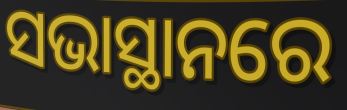
ସଭାସ୍ଥାନରେ